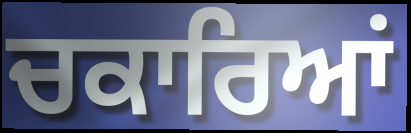
ਚਕਾਰਿਆਂ